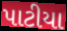
પાટીયા